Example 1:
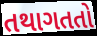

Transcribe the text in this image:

તથાગતતો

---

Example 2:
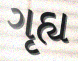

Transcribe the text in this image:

ગૃહ્ય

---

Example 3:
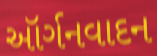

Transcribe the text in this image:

ઑર્ગનવાદન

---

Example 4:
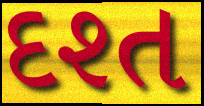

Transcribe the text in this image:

દશ્ત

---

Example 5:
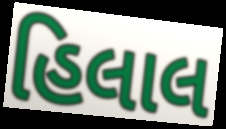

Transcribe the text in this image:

હિલાલ